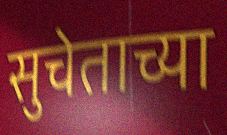
सुचेताच्या